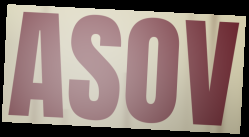
ASOV